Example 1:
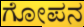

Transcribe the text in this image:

ಗೋಪನ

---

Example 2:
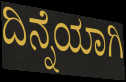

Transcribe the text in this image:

ದಿನ್ನೆಯಾಗಿ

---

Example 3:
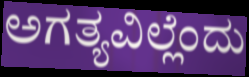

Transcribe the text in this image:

ಅಗತ್ಯವಿಲ್ಲೆಂದು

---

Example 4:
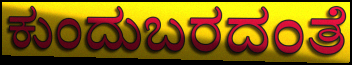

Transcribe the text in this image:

ಕುಂದುಬರದಂತೆ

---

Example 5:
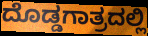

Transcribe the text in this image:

ದೊಡ್ಡಗಾತ್ರದಲ್ಲಿ